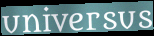
universus